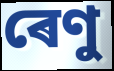
ৰেণু